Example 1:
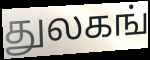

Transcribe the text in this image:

துலகங்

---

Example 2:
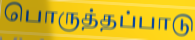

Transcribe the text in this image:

பொருத்தப்பாடு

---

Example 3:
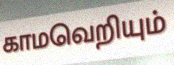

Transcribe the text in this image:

காமவெறியும்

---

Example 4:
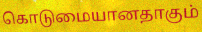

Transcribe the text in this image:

கொடுமையானதாகும்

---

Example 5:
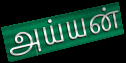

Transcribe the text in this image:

அய்யன்